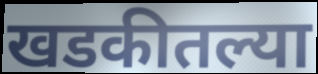
खडकीतल्या